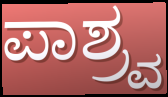
ಪಾಶ್ರ್ವ